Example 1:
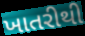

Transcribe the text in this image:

ખાતરીથી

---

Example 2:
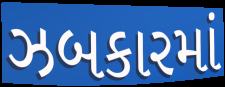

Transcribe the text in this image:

ઝબકારમાં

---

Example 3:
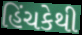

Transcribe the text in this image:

હિંચકેથી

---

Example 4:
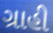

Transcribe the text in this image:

ગ્રાહી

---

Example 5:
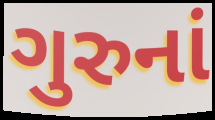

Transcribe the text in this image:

ગુરુનાં